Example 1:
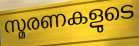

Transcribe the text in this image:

സ്മരണകളുടെ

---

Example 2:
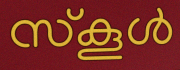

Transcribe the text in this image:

സ്കൂൾ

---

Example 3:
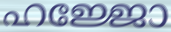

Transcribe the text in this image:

ഹജ്ജോ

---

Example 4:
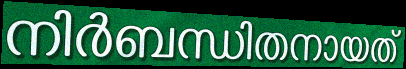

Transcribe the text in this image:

നിർബന്ധിതനായത്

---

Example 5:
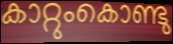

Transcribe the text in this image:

കാറ്റുംകൊണ്ടു